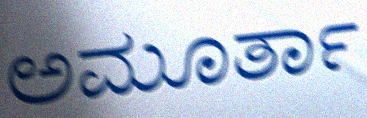
ಅಮೂರ್ತಾ